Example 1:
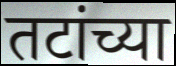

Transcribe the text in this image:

तटांच्या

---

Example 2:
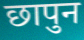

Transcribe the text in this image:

छापुन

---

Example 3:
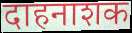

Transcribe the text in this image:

दाहनाशक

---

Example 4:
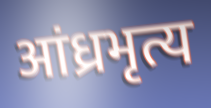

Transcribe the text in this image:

आंध्रभृत्य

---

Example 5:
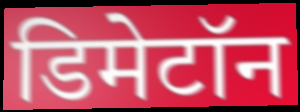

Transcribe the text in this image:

डिमेटॉन